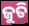
ଜୁତି